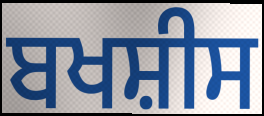
ਬਖਸ਼ੀਸ